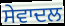
ਸੇਵਾਦਲ